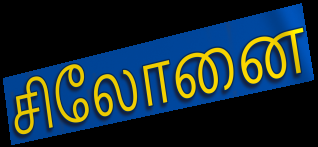
சிலோனை